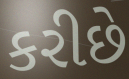
કરીછે